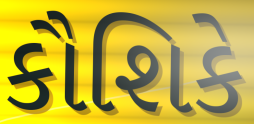
કૌશિકે